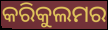
କରିକୁଲମର